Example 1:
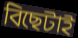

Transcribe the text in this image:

বিছেটাই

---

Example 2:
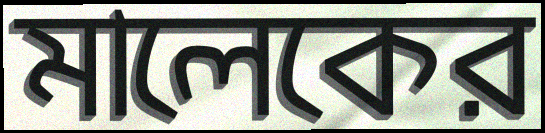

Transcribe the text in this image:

মালেকের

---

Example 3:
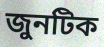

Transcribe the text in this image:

জুনটিক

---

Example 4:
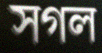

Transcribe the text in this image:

সগল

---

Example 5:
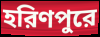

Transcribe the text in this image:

হরিণপুরে